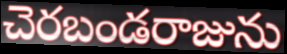
చెరబండరాజును